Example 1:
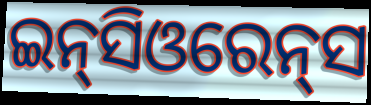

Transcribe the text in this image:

ଇନ୍‌ସିଓରେନ୍‌ସ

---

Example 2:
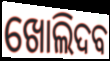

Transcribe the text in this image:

ଖୋଲିଦବ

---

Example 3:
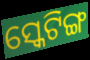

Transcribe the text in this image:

ସ୍କେଟିଙ୍ଗ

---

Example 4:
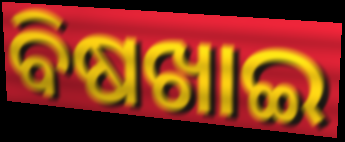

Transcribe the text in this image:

ବିଷଖାଇ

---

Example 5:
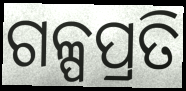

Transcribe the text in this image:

ଗଳ୍ପପ୍ରତି